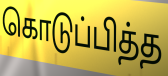
கொடுப்பித்த